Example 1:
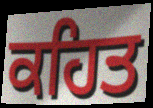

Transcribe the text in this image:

ਕਹਿਤ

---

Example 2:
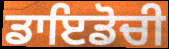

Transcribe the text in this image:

ਡਾਇਡੋਚੀ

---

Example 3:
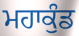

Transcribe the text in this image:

ਮਹਾਕੁੰਡ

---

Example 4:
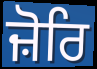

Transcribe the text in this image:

ਜ਼ੋਰਿ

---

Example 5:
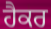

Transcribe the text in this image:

ਹੈਕਰ